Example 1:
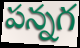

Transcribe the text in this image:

పన్నగ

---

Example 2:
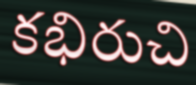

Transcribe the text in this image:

కభిరుచి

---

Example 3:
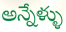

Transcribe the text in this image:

అన్నేళ్ళు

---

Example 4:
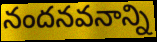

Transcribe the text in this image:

నందనవనాన్ని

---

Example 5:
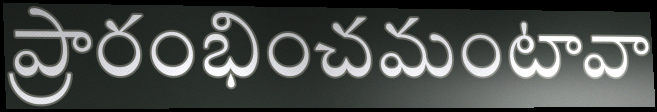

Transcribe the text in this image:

ప్రారంభించమంటావా